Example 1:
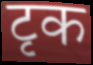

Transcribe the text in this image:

टृक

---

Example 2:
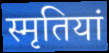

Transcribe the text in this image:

स्मृतियां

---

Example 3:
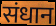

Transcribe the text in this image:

संधान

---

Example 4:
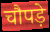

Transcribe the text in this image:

चौपड़े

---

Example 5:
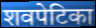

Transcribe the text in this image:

शवपेटिका